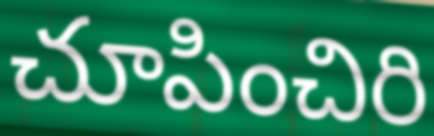
చూపించిరి